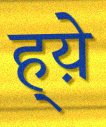
ह्य़े